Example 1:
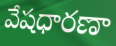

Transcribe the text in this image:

వేషధారణా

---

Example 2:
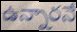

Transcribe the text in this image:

ఉన్నారనే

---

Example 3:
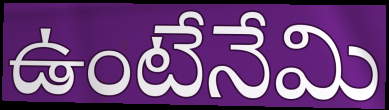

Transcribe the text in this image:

ఉంటేనేమి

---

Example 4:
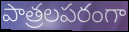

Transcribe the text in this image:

పాత్రలపరంగా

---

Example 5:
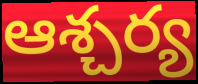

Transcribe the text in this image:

ఆశ్చర్య